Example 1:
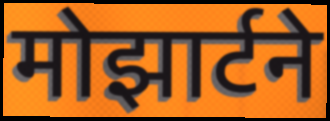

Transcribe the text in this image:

मोझार्टने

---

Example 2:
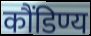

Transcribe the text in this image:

कौंडिण्य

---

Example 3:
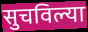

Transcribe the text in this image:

सुचविल्या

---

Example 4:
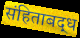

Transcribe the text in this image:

संहिताबद्ध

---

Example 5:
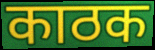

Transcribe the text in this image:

काठक